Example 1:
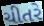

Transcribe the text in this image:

ચીતરે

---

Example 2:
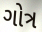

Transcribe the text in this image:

ગોત્ર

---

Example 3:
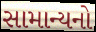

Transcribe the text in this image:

સામાન્યનો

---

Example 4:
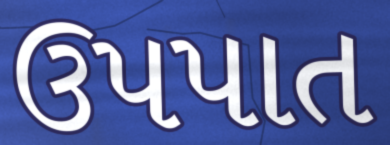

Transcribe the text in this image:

ઉપપાત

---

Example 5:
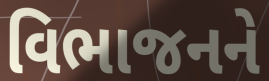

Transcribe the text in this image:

વિભાજનને